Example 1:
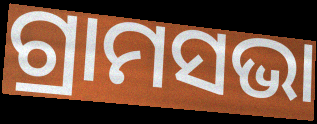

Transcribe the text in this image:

ଗ୍ରାମସଭା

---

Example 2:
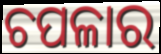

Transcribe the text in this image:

ଚପଳାର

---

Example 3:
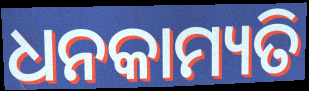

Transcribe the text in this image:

ଧନକାମ୍ୟତି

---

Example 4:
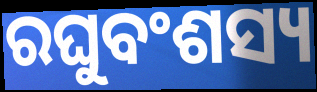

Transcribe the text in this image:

ରଘୁବଂଶସ୍ୟ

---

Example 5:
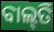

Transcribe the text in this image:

ବାଲ୍‌ତି